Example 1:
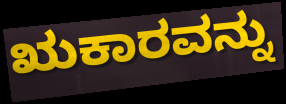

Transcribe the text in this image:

ಋಕಾರವನ್ನು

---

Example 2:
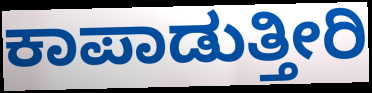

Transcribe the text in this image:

ಕಾಪಾಡುತ್ತೀರಿ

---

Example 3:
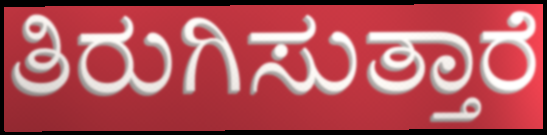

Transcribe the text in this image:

ತಿರುಗಿಸುತ್ತಾರೆ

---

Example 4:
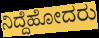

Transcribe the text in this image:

ನಿದ್ದೆಹೋದರು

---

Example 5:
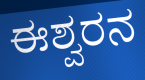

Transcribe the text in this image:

ಈಶ್ವರನ